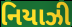
નિયાઝી